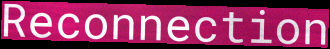
Reconnection